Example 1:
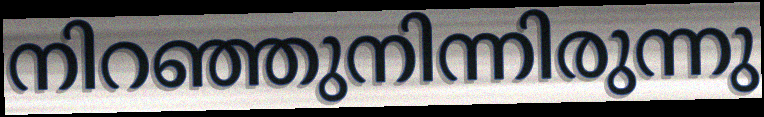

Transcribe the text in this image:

നിറഞ്ഞുനിന്നിരുന്നു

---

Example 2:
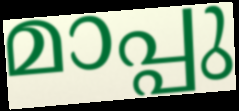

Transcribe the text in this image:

മാപ്പു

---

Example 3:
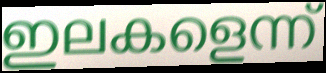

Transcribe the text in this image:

ഇലകളെന്ന്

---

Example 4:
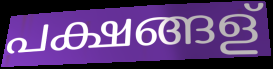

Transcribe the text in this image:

പക്ഷങ്ങള്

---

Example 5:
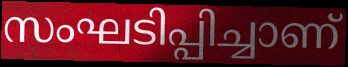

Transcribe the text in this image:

സംഘടിപ്പിച്ചാണ്